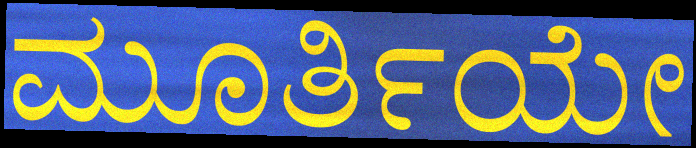
ಮೂರ್ತಿಯೇ